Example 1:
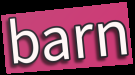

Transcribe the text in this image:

barn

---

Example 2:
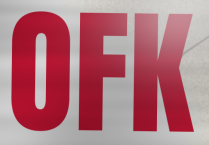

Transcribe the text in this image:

OFK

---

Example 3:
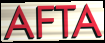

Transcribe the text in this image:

AFTA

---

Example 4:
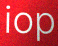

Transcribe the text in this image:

iop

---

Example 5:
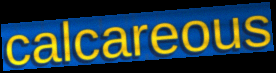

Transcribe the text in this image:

calcareous